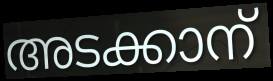
അടക്കാന്